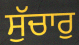
ਸੁੱਚਾਰੁ